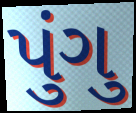
પુંગુ